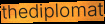
thediplomat